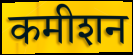
कमीशन